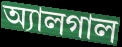
অ্যালগাল